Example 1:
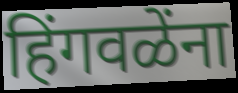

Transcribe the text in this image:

हिंगवळेंना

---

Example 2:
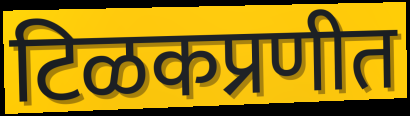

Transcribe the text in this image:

टिळकप्रणीत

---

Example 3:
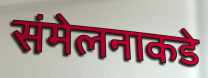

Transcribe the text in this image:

संमेलनाकडे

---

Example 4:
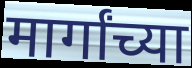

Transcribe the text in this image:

मार्गांच्या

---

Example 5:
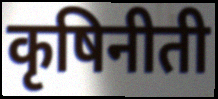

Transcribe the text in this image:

कृषिनीती